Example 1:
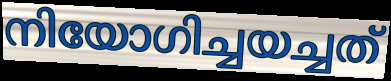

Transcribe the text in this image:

നിയോഗിച്ചയച്ചത്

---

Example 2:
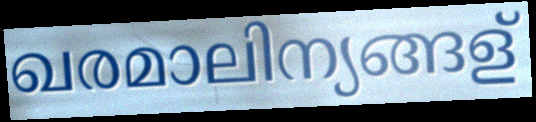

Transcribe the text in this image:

ഖരമാലിന്യങ്ങള്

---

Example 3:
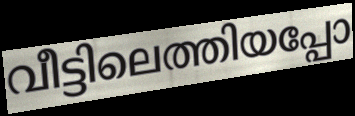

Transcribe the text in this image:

വീട്ടിലെത്തിയപ്പോ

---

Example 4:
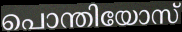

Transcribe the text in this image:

പൊന്തിയോസ്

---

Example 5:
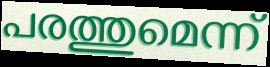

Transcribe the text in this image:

പരത്തുമെന്ന്